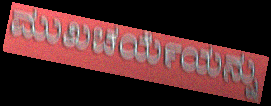
ಮುಖಚರ್ಯೆಯನ್ನು